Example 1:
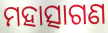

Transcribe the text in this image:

ମହାତ୍ସାଗଣ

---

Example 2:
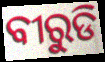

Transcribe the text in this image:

ବୀରୁଡି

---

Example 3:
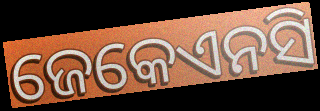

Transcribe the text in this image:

ଜେକେଏନସି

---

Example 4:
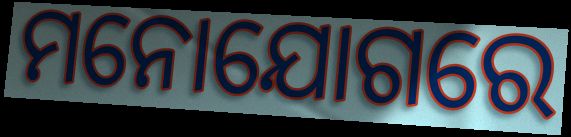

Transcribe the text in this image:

ମନୋଯୋଗରେ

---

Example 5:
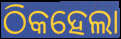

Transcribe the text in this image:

ଠିକହେଲା